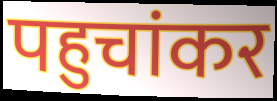
पहुचांकर